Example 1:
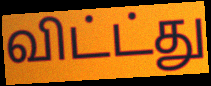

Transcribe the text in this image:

விட்ட்து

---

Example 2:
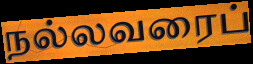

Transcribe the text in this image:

நல்லவரைப்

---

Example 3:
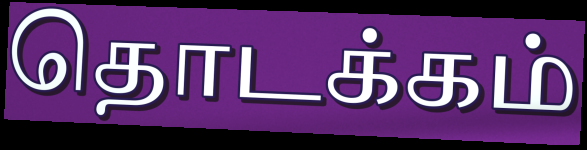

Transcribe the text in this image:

தொடக்கம்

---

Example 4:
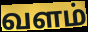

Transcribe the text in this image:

வளம்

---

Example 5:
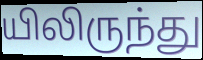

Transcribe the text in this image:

யிலிருந்து